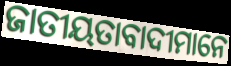
ଜାତୀୟତାବାଦୀମାନେ